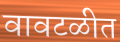
वावटळीत